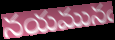
నయమునఁ